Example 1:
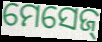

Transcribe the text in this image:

ମେସେଜ୍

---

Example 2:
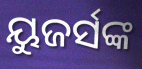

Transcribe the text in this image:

ୟୁଜର୍ସଙ୍କ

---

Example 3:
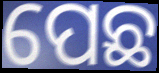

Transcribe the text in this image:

ପେଛ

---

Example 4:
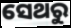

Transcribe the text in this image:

ସେଥରୁ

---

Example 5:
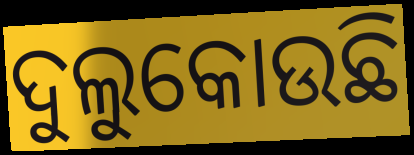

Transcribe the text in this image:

ଦୁଲୁକୋଉଛି